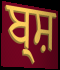
ਬ੍ਸ਼